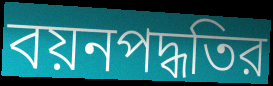
বয়নপদ্ধতির